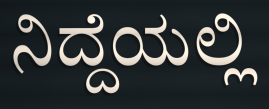
ನಿದ್ದೆಯಲ್ಲಿ